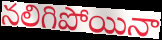
నలిగిపోయినా